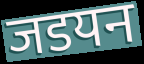
जडयन